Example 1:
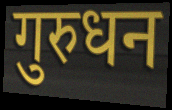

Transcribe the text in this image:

गुरुधन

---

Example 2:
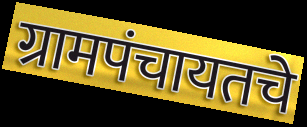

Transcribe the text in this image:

ग्रामपंचायतचे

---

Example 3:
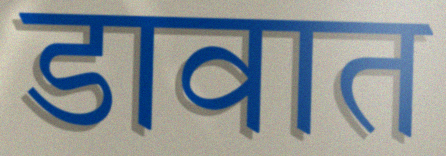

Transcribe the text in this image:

डावात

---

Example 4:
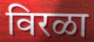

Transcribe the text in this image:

विरळा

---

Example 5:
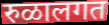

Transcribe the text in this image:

रुळालगत